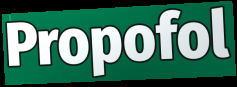
Propofol